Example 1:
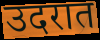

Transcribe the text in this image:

उदरात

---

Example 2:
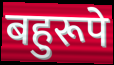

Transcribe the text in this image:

बहुरूपे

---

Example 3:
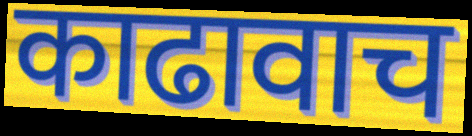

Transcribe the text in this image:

काढावाच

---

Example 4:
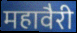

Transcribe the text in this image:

महावैरी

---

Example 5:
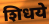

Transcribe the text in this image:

शिधये